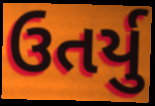
ઉતર્યુ